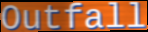
Outfall